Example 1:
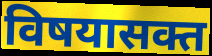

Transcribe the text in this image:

विषयासक्त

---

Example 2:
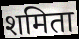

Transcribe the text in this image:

शमिता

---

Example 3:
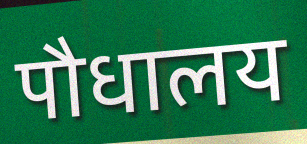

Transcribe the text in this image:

पौधालय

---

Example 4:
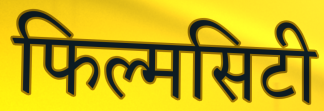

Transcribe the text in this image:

फिल्मसिटी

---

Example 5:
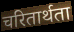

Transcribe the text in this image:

चरितार्थता